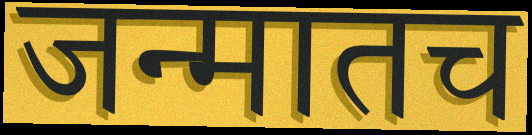
जन्मातच